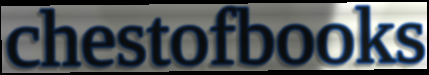
chestofbooks